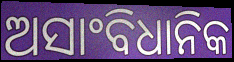
ଅସାଂବିଧାନିକ